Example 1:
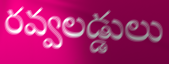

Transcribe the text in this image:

రవ్వలడ్డులు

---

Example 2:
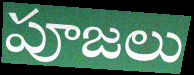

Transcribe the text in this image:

పూజలు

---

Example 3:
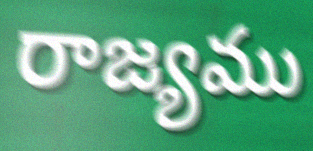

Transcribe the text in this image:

రాజ్యము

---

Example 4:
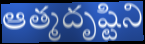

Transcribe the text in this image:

ఆత్మదృష్టిని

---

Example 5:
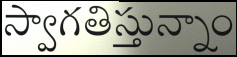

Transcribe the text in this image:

స్వాగతిస్తున్నాం